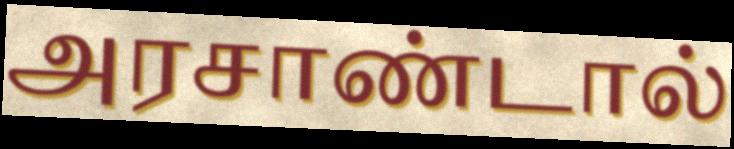
அரசாண்டால்